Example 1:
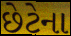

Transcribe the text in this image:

છેટેના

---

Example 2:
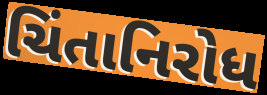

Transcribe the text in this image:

ચિંતાનિરોધ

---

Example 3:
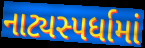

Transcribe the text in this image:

નાટ્યસ્પર્ધામાં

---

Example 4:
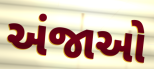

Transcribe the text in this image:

અંજાઓ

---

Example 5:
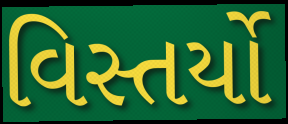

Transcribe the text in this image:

વિસ્તર્યો